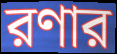
রণার